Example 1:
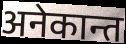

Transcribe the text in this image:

अनेकान्त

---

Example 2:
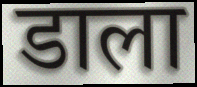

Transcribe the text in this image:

डाला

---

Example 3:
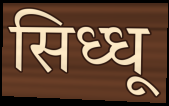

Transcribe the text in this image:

सिध्धू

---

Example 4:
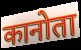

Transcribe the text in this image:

कानोता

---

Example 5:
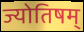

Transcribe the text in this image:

ज्योतिषम्